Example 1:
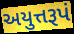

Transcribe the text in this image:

અયુત્તરૂપં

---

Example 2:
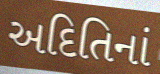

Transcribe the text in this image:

અદિતિનાં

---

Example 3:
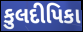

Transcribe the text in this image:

કુલદીપિકા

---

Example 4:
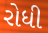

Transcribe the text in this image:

રોધી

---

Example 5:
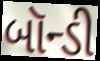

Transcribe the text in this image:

બૉન્ડી